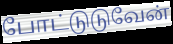
போட்டுடுவேன்